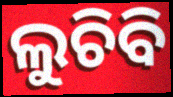
ଲୁଚିବି